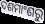
ଦଶମାଂଶରୁ